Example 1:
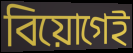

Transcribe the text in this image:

বিয়োগেই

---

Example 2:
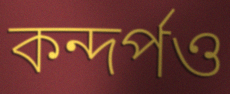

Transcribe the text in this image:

কন্দর্পও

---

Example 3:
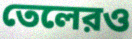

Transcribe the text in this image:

তেলেরও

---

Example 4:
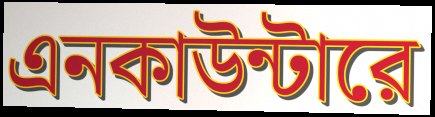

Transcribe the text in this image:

এনকাউন্টারে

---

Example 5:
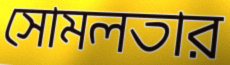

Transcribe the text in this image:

সোমলতার